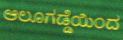
ಆಲೂಗಡ್ಡೆಯಿಂದ